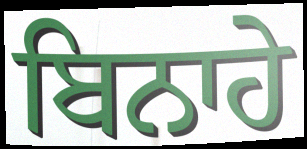
ਬਿਨਾਹੇ